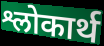
श्लोकार्थ